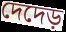
দেদেড়